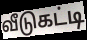
வீடுகட்டி